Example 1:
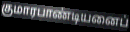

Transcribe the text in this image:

குமாரபாண்டியனைப்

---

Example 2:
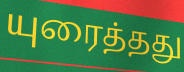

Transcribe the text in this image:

யுரைத்தது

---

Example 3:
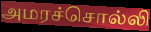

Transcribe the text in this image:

அமரச்சொல்லி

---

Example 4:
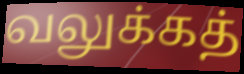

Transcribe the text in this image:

வலுக்கத்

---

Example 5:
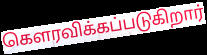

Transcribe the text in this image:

கௌரவிக்கப்படுகிறார்